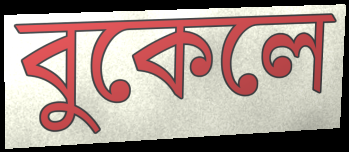
বুকেলে